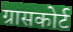
ग्रासकोर्ट